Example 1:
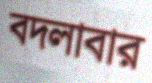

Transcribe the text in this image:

বদলাবার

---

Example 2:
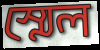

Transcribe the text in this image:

স্মেল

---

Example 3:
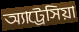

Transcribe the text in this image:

অ্যাট্রেসিয়া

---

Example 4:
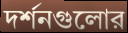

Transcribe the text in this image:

দর্শনগুলোর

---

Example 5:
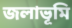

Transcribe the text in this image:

জলাভূমি